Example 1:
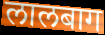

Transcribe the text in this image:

लालबाग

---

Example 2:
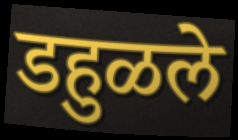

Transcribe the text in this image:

डहुळले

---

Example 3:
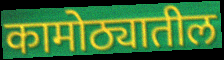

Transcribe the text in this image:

कामोठ्यातील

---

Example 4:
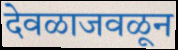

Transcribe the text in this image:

देवळाजवळून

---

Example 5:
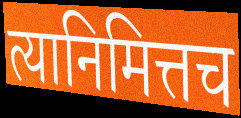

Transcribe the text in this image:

त्यानिमित्तच